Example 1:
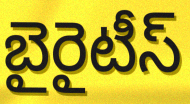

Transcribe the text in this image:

బైరైటీస్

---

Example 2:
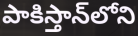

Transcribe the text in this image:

పాకిస్తాన్‌లోని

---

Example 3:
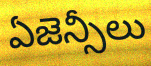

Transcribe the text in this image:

ఏజెన్సీలు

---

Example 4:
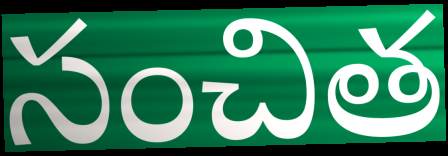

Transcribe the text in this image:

సంచిత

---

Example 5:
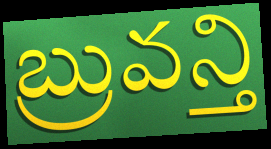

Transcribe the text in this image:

బ్రువన్తి